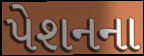
પેશનના